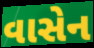
વાસેન